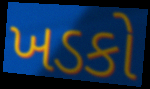
ખડકો